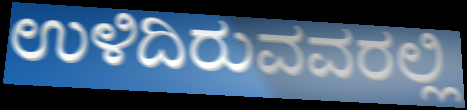
ಉಳಿದಿರುವವರಲ್ಲಿ